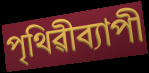
পৃথিৱীব্যাপী